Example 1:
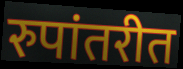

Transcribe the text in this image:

रुपांतरीत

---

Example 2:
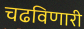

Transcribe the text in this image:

चढविणारी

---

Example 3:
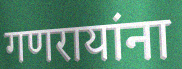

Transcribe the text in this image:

गणरायांना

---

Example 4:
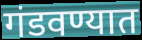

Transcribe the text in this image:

गंडवण्यात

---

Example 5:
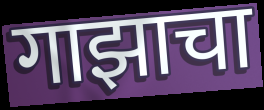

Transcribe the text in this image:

गाझाचा